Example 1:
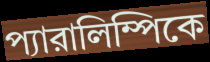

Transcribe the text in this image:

প্যারালিম্পিকে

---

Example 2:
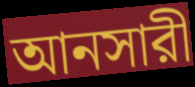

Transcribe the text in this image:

আনসারী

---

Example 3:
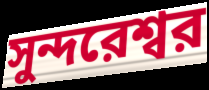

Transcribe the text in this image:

সুন্দরেশ্বর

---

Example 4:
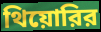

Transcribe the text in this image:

থিয়োরির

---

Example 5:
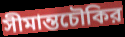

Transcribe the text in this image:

সীমান্তচৌকির